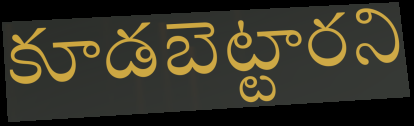
కూడబెట్టారని